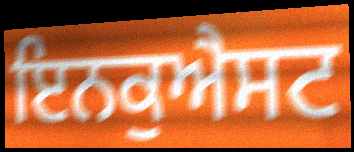
ਇਨਕੁਐਸਟ